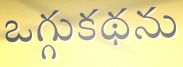
ఒగ్గుకథను